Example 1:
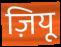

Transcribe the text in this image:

ज़ियू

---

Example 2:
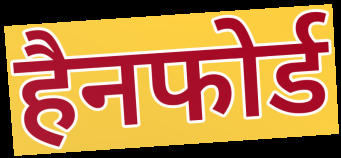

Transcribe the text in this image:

हैनफोर्ड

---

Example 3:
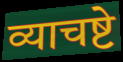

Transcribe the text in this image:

व्याचष्टे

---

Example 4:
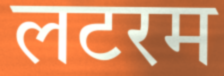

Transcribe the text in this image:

लटरम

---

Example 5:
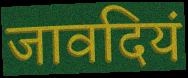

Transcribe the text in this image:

जावदियं